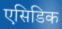
एसिडिक